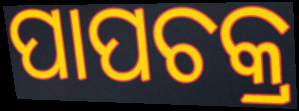
ପାପଚକ୍ର